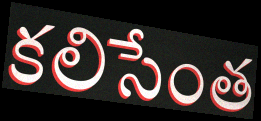
కలిసేంత